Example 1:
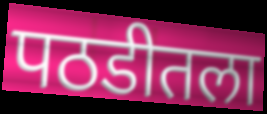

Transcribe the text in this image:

पठडीतला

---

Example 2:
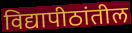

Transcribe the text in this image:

विद्यापीठांतील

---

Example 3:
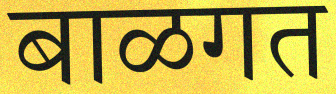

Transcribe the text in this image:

बाळगत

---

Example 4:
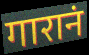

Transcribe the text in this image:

गारानं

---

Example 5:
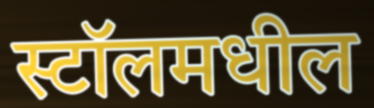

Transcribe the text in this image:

स्टॉलमधील